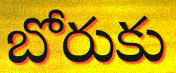
బోరుకు